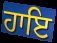
ਹਾਇ